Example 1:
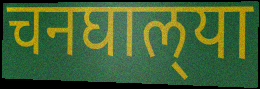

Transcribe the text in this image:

चनघाल्या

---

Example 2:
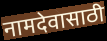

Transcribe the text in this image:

नामदेवासाठी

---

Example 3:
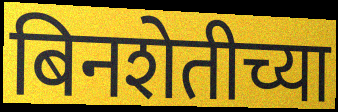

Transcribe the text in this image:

बिनशेतीच्या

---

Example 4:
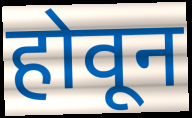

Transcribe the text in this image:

होवून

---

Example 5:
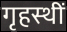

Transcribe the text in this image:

गृहस्थीं